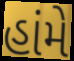
હાંમે